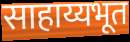
साहाय्यभूत